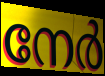
നേർ